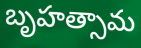
బృహత్సామ